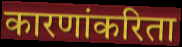
कारणांकरिता